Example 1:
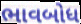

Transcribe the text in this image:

ભાવબોધ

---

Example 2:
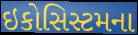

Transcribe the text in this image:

ઇકોસિસ્ટમના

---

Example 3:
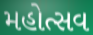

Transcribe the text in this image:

મહોત્સવ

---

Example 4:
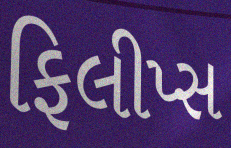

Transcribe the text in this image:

ફિલીપ્સ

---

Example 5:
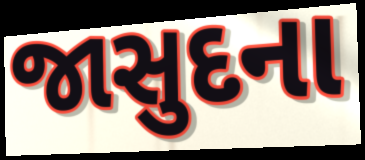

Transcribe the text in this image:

જાસુદના